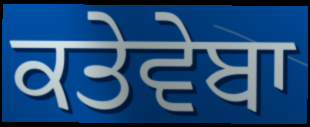
ਕਤੇਵੇਬਾ